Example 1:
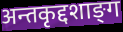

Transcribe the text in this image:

अन्तकृद्दशाङ्ग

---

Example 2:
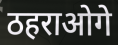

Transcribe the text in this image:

ठहराओगे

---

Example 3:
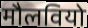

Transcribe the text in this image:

मौलवियो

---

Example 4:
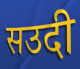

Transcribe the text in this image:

सउदी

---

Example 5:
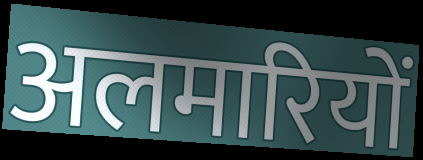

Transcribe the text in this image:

अलमारियों